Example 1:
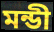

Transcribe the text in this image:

মন্ডী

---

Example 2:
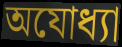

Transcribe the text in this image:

অযোধ্যা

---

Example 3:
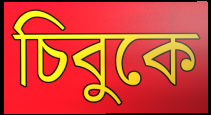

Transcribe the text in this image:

চিবুকে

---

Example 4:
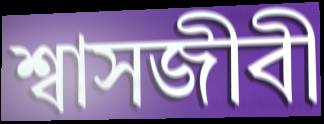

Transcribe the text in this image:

শ্বাসজীবী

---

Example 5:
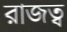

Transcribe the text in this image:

রাজত্ব